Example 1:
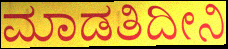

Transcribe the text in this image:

ಮಾಡತಿದೀನಿ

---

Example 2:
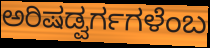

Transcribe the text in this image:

ಅರಿಷಡ್ವರ್ಗಗಳೆಂಬ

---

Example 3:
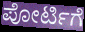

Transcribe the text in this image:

ಪೋರ್ಟಿಗೆ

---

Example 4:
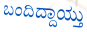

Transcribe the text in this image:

ಬಂದಿದ್ದಾಯ್ತು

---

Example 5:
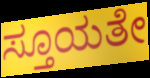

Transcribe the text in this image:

ಸ್ತೂಯತೇ